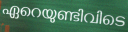
ഏറെയുണ്ടിവിടെ